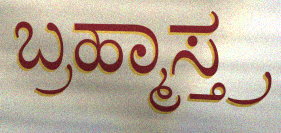
ಬ್ರಹ್ಮಾಸ್ತ್ರ